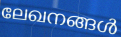
ലേഖനങ്ങൾ